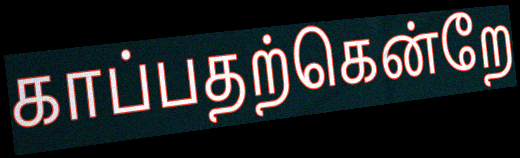
காப்பதற்கென்றே